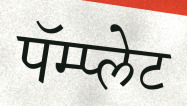
पॅम्प्लेट